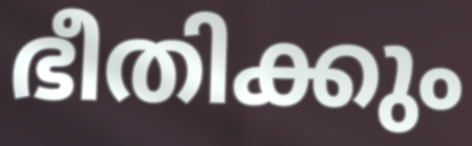
ഭീതിക്കും